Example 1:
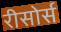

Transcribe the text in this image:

रीसोर्स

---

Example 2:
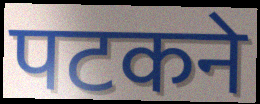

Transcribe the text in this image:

पटकने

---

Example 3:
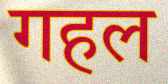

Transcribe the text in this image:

गहल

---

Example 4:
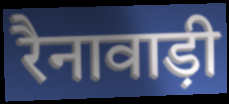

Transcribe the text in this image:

रैनावाड़ी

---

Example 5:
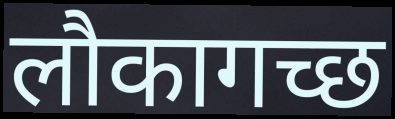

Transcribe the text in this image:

लौकागच्छ